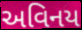
અવિનય